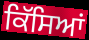
ਕਿੱਸਿਆਂ